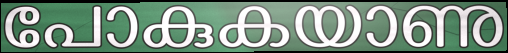
പോകുകയാണു